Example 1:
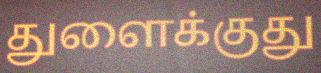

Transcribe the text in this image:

துளைக்குது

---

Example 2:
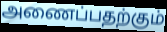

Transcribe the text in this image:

அணைப்பதற்கும்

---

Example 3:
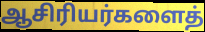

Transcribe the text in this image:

ஆசிரியர்களைத்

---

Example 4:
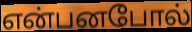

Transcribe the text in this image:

என்பனபோல்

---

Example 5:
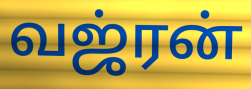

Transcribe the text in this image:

வஜ்ரன்